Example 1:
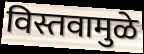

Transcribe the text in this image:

विस्तवामुळे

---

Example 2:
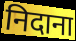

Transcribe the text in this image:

निदाना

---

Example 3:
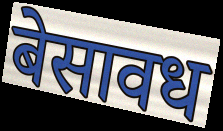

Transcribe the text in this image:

बेसावध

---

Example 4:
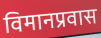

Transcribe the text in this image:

विमानप्रवास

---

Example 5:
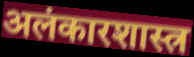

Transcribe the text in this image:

अलंकारशास्त्र